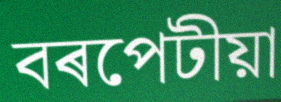
বৰপেটীয়া